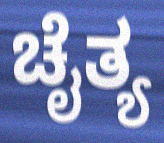
ಚೈತ್ಯ